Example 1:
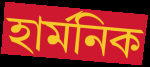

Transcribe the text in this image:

হার্মনিক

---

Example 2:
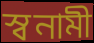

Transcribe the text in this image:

স্বনামী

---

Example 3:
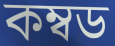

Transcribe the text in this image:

কম্বড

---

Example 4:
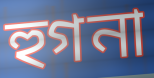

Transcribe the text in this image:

হুগনা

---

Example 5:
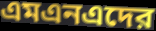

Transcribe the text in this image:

এমএনএদের